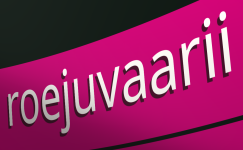
roejuvaarii